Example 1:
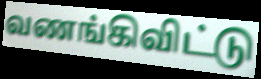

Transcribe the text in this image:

வணங்கிவிட்டு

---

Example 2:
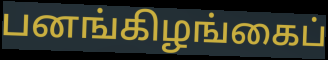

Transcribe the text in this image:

பனங்கிழங்கைப்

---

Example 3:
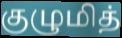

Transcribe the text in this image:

குழுமித்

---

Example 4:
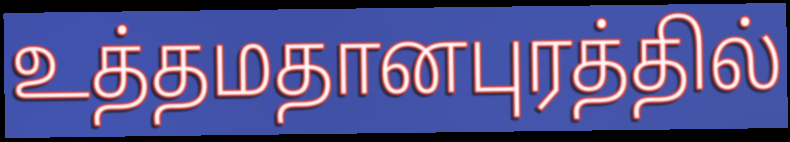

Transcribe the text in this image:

உத்தமதானபுரத்தில்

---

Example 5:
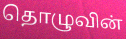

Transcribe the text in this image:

தொழுவின்